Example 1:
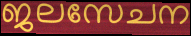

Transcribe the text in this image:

ജലസേചന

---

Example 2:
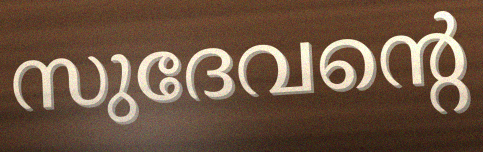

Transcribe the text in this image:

സുദേവന്റെ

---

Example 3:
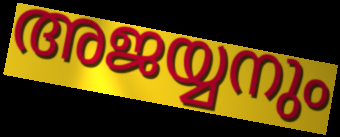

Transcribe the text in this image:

അജയ്യനും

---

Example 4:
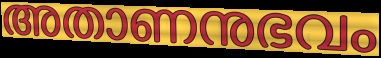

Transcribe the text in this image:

അതാണനുഭവം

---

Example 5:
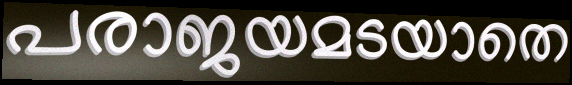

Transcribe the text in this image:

പരാജയമടയാതെ